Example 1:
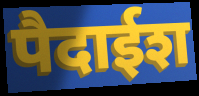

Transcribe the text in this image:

पैदाईश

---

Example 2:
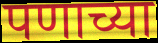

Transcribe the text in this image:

पणाच्या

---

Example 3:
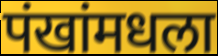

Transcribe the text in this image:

पंखांमधला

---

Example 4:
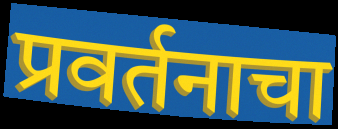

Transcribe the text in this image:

प्रवर्तनाचा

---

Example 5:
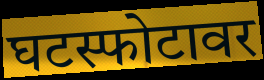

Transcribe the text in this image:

घटस्फोटावर